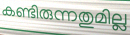
കണ്ടിരുന്നതുമില്ല